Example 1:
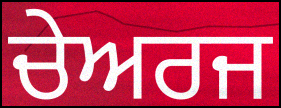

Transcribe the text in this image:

ਚੇਅਰਜ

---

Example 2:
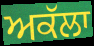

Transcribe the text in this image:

ਅਕੱਲਾ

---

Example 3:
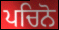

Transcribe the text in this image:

ਪਚਿਨੋ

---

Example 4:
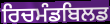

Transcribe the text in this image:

ਰਿਚਮੰਡਬਿਲਡ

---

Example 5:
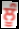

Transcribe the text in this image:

ਲੂੰ